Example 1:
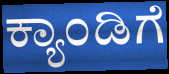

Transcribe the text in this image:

ಕ್ಯಾಂಡಿಗೆ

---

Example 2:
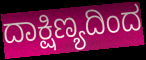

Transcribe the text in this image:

ದಾಕ್ಷಿಣ್ಯದಿಂದ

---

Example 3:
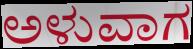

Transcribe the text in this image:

ಅಳುವಾಗ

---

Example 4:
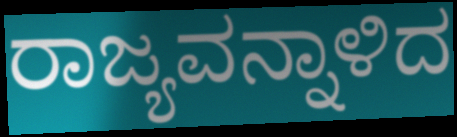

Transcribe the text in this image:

ರಾಜ್ಯವನ್ನಾಳಿದ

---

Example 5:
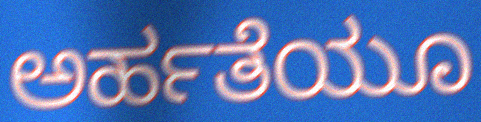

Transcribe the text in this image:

ಅರ್ಹತೆಯೂ